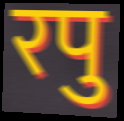
रपु